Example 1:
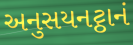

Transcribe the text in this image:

અનુસયનટ્ઠાનં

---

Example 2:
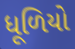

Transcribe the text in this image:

ધૂળિયો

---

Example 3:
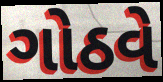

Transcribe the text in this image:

ગોઠવે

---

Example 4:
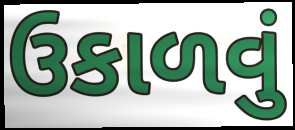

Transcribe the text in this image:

ઉકાળવું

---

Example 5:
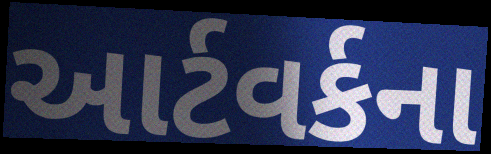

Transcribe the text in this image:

આર્ટવર્કના